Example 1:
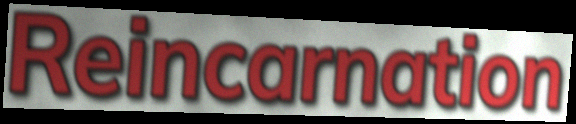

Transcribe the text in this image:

Reincarnation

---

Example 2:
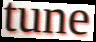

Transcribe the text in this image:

tune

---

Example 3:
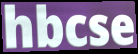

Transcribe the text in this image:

hbcse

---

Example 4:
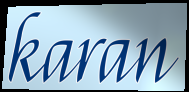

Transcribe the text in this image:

karan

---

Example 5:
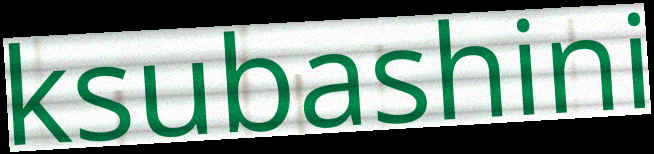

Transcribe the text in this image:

ksubashini